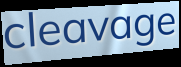
cleavage